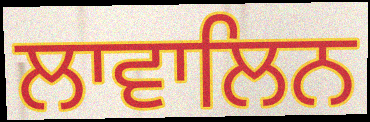
ਲਾਵਾਲਿਨ